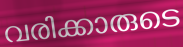
വരിക്കാരുടെ